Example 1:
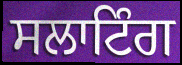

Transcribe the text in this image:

ਸਲਾਟਿੰਗ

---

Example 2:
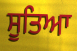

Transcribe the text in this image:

ਸੂਤਿਆ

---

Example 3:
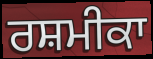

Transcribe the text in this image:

ਰਸ਼ਮੀਕਾ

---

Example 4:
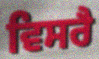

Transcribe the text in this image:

ਵਿਸਰੈ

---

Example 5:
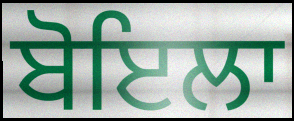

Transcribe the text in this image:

ਬੋਇਲਾ